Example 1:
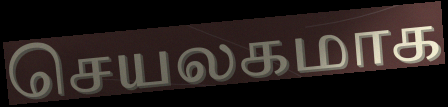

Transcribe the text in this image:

செயலகமாக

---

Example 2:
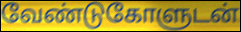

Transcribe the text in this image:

வேண்டுகோளுடன்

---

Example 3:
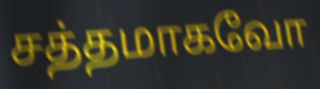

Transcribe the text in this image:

சத்தமாகவோ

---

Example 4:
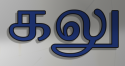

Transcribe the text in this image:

கலு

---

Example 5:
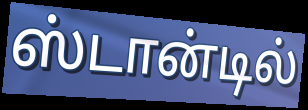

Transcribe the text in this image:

ஸ்டான்டில்